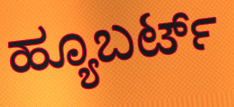
ಹ್ಯೂಬರ್ಟ್